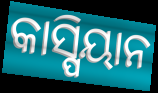
କାସ୍ପିୟାନ